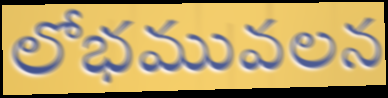
లోభమువలన